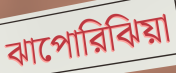
ঝাপোরিঝিয়া